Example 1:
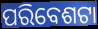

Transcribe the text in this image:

ପରିବେଶଟା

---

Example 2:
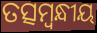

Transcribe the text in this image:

ତତ୍ସମ୍ବନ୍ଧୀୟ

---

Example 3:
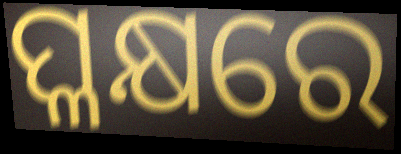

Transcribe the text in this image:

ପ୍ଳକ୍ଷରେ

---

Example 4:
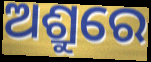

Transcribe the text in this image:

ଅଶ୍ରୁରେ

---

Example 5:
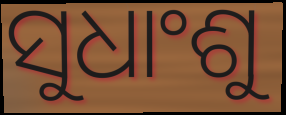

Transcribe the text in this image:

ସୁଧାଂଶୁ